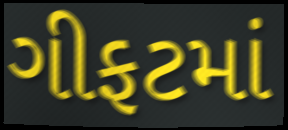
ગીફટમાં